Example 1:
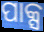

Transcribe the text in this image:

ପାକ୍ସ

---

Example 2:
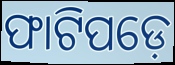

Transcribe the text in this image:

ଫାଟିପଡ଼େ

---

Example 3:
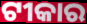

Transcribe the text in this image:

ଟୀକାର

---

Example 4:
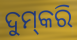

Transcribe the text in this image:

ଦୁମ୍‍କରି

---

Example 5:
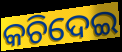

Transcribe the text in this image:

କଚିଦେଇ